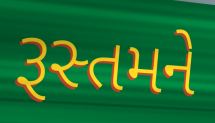
રૂસ્તમને